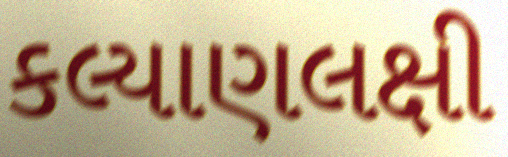
કલ્યાણલક્ષી